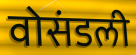
वोसंडली